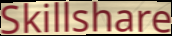
Skillshare